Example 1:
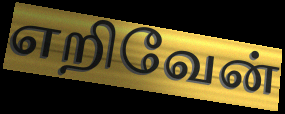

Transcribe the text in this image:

எறிவேன்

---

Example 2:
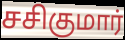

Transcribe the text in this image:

சசிகுமார்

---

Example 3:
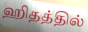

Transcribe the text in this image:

ஹிதத்தில்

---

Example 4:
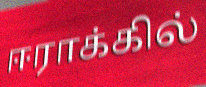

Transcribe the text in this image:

ஈராக்கில்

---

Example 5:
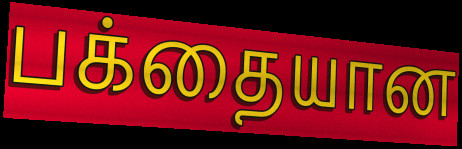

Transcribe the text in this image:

பக்தையான